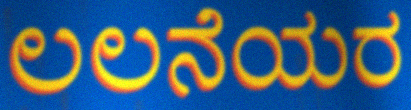
ಲಲನೆಯರ